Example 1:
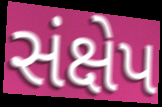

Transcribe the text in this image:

સંક્ષેપ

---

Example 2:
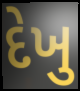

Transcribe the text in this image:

દેખુ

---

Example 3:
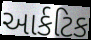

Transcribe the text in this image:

આર્કટિક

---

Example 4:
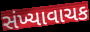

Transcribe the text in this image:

સંખ્યાવાચક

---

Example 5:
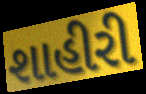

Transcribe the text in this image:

શાહીરી